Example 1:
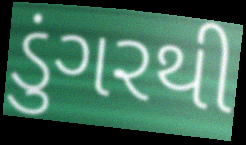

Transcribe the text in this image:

ડુંગરથી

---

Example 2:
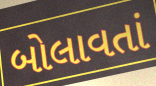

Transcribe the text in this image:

બોલાવતાં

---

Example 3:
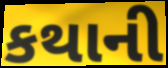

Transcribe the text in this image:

કથાની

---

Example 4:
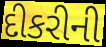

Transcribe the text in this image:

દીકરીની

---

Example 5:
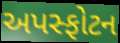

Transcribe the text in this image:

અપસ્ફોટન